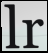
lr